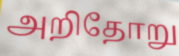
அறிதோறு